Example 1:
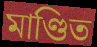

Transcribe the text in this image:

মাণ্ডিত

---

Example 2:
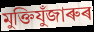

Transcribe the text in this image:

মুক্তিযুঁজাৰুৰ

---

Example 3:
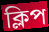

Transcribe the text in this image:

ক্লিপ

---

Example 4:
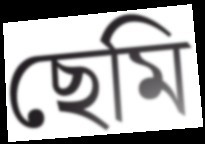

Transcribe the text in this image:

ছেমি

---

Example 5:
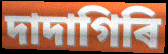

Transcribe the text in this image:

দাদাগিৰি